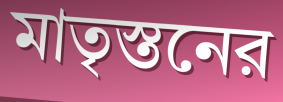
মাতৃস্তনের